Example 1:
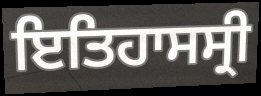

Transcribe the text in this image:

ਇਤਿਹਾਸਸ੍ਰੀ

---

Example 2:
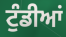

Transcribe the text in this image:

ਟੁੰਡੀਆਂ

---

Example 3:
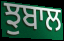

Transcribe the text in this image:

ਝੁਬਾਲ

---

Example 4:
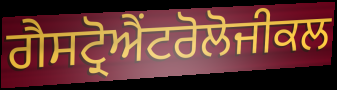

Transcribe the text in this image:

ਗੈਸਟ੍ਰੋਐਂਟਰੋਲੋਜੀਕਲ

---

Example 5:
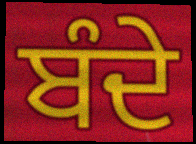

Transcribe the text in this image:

ਬੰਦੇ